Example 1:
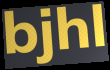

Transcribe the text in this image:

bjhl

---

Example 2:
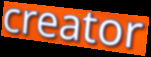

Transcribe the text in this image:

creator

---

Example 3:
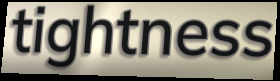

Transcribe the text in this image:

tightness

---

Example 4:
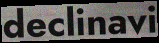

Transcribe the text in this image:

declinavi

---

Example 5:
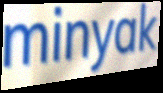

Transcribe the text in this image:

minyak